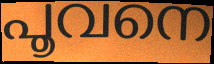
പൂവനെ